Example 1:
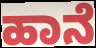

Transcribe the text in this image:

ಹಾನೆ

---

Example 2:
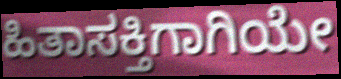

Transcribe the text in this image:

ಹಿತಾಸಕ್ತಿಗಾಗಿಯೇ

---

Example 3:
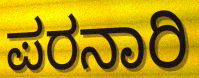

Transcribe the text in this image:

ಪರನಾರಿ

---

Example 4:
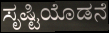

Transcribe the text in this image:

ಸೃಷ್ಟಿಯೊಡನೆ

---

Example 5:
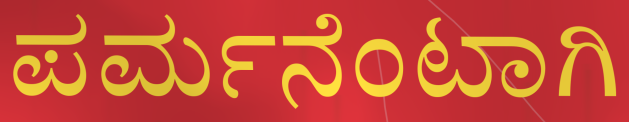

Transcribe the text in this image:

ಪರ್ಮನೆಂಟಾಗಿ